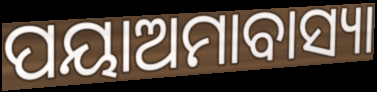
ପୟାଅମାବାସ୍ୟା